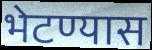
भेटण्यास